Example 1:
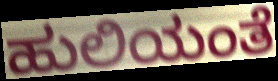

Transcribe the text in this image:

ಹುಲಿಯಂತೆ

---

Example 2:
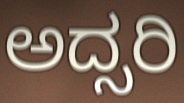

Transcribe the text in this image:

ಅದ್ಸರಿ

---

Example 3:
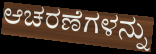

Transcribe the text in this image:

ಆಚರಣೆಗಳನ್ನು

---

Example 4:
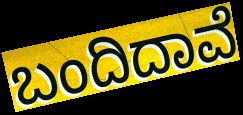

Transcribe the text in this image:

ಬಂದಿದಾವೆ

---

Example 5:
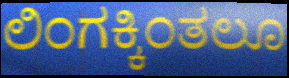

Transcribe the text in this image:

ಲಿಂಗಕ್ಕಿಂತಲೂ